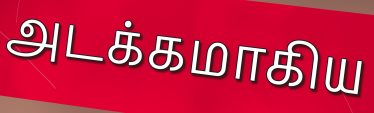
அடக்கமாகிய